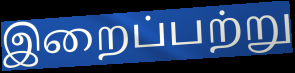
இறைப்பற்று